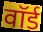
वॉर्ड